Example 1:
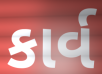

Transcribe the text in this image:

કાર્વ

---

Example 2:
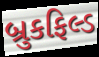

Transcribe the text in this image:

બ્રુકફિલ્ડ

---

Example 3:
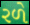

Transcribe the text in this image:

રળે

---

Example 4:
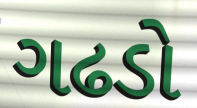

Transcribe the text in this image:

ગઢડો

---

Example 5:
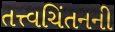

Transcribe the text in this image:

તત્ત્વચિંતનની